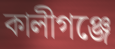
কালীগঞ্জে